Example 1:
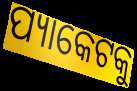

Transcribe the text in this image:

ପ୍ୟାକେଟକୁ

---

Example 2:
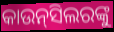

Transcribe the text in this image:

କାଉନ୍‌ସିଲରଙ୍କୁ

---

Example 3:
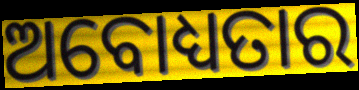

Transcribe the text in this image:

ଅବୋଧ୍ୟତାର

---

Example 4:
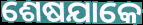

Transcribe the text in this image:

ଶେଷଯାକେ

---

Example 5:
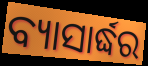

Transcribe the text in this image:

ବ୍ୟାସାର୍ଦ୍ଧର